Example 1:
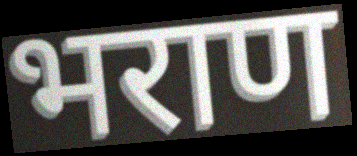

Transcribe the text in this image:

भराण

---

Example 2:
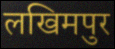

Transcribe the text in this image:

लखिमपुर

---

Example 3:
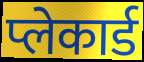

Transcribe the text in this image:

प्‍लेकार्ड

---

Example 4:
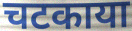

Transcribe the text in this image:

चटकाया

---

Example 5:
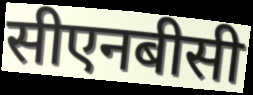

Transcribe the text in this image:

सीएनबीसी